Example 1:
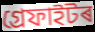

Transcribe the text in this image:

গ্ৰেফাইটৰ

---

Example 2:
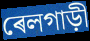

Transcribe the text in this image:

ৰেলগাড়ী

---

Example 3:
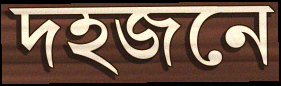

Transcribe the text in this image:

দহজনে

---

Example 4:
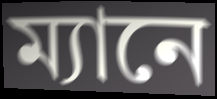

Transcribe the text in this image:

ম্যানে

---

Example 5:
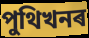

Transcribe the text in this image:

পুথিখনৰ